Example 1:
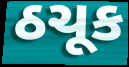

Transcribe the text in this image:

ઠચૂક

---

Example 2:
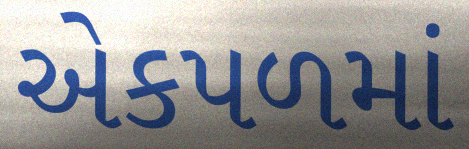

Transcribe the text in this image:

એકપળમાં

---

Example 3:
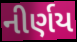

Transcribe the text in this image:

નીર્ણય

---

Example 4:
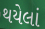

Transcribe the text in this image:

થયેલાં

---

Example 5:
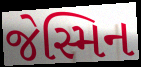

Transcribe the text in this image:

જેસ્મિન